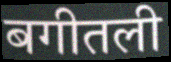
बगीतली